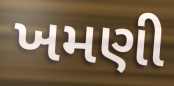
ખમણી